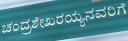
ಚಂದ್ರಶೇಖರಯ್ಯನವರಿಗೆ